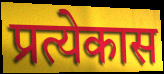
प्रत्येकास